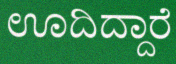
ಊದಿದ್ದಾರೆ